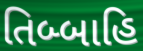
તિબ્બાહિ